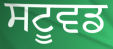
ਸਟੂਵਡ